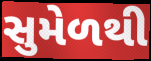
સુમેળથી